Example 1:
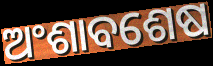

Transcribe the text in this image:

ଅଂଶାବଶେଷ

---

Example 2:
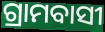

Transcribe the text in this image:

ଗ୍ରାମବାସୀ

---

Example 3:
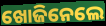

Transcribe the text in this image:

ଖୋଜିନେଲେ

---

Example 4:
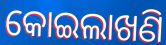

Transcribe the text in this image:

କୋଇଲାଖଣି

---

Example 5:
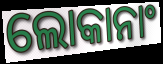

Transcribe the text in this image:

ଲୋକାନାଂ